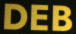
DEB